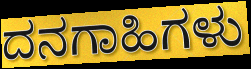
ದನಗಾಹಿಗಳು